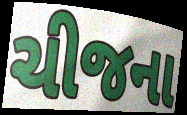
ચીજના